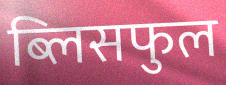
ब्लिसफुल